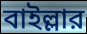
বাইল্লার